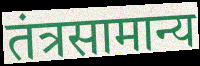
तंत्रसामान्य